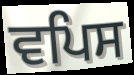
ਵਪਿਸ